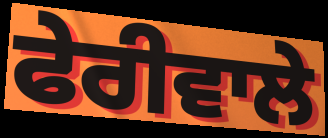
ਫੇਰੀਵਾਲੇ